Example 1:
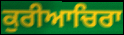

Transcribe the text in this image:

ਕੁਰੀਆਚਿਰਾ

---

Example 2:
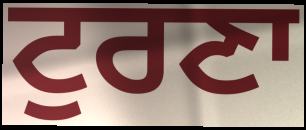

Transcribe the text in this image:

ਟੁਰਣਾ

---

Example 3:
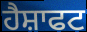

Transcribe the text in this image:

ਹੈਸ਼ਾਫਟ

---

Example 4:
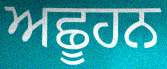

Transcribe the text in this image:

ਅਛੂਹਨ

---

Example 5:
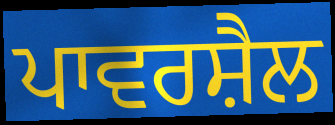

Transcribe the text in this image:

ਪਾਵਰਸ਼ੈਲ